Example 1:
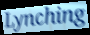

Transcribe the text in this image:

Lynching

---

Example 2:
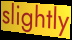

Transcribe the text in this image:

slightly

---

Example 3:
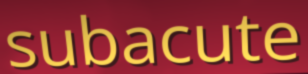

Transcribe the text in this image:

subacute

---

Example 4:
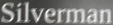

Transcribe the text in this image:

Silverman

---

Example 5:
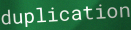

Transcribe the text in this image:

duplication